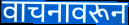
वाचनावरून